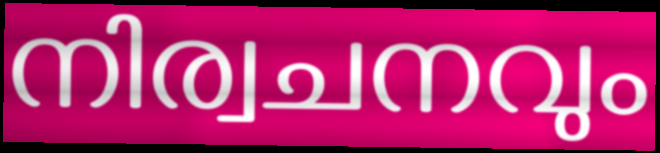
നിര്വചനവും